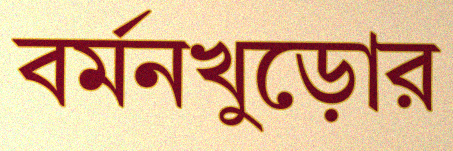
বর্মনখুড়োর